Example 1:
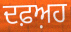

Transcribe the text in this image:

ਦਫ਼ਅ਼ਹ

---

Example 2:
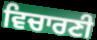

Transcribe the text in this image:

ਵਿਚਾਰਣੀ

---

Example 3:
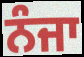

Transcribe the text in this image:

ਨੰਜਾ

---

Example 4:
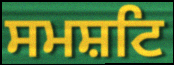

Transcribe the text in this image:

ਸਮਸ਼ਟਿ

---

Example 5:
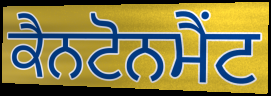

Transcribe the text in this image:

ਕੈਨਟੋਨਮੈਂਟ